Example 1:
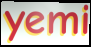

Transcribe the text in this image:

yemi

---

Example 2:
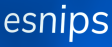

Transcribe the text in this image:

esnips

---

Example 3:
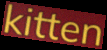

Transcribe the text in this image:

kitten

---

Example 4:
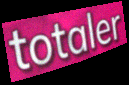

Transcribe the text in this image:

totaler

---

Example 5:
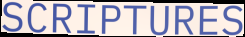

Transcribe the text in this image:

SCRIPTURES